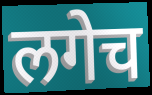
लगेच